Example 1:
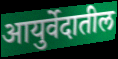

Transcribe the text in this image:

आयुर्वेदातील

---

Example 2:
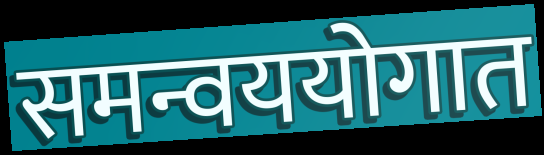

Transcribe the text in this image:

समन्वययोगात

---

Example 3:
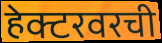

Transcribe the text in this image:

हेक्टरवरची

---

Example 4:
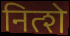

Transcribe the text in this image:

नित्शे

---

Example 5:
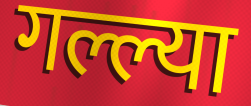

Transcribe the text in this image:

गल्ल्या